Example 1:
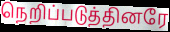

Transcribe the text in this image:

நெறிப்படுத்தினரே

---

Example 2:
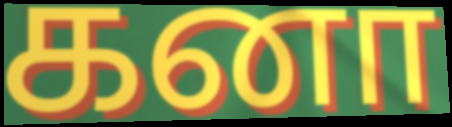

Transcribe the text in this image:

கனா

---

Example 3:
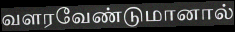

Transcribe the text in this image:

வளரவேண்டுமானால்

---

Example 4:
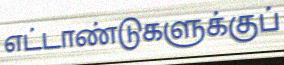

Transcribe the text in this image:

எட்டாண்டுகளுக்குப்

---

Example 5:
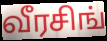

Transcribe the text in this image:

வீரசிங்